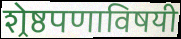
श्रेष्ठपणाविषयी